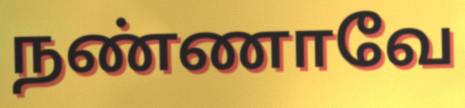
நண்ணாவே